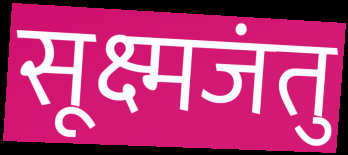
सूक्ष्मजंतु